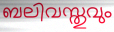
ബലിവസ്തുവും